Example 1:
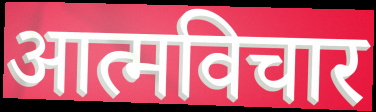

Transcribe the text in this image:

आत्मविचार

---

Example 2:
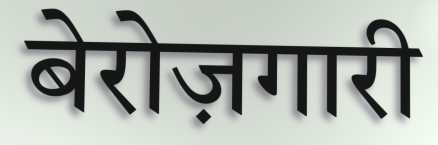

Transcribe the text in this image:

बेरोज़गारी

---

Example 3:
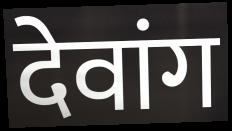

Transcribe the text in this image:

देवांग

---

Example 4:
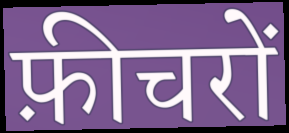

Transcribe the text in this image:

फ़ीचरों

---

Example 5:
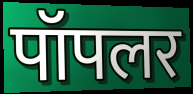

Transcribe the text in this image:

पॉपलर